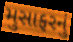
મુસાફરનું